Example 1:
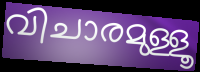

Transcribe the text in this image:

വിചാരമുള്ളൂ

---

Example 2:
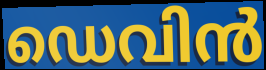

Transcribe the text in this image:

ഡെവിൻ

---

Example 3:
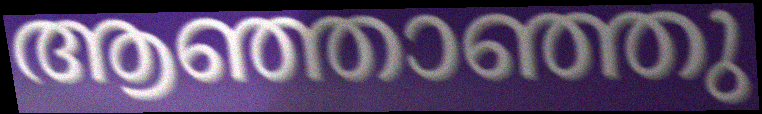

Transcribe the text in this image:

ആഞ്ഞാഞ്ഞു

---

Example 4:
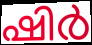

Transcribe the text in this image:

ഷിർ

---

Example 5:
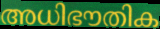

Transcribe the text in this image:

അധിഭൗതിക